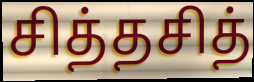
சித்தசித்